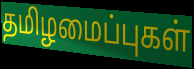
தமிழமைப்புகள்